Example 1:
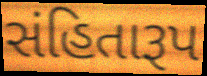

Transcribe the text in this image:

સંહિતારૂપ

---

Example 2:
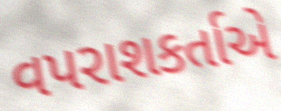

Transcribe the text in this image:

વપરાશકર્તાએ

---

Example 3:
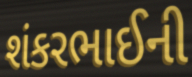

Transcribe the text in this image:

શંકરભાઈની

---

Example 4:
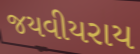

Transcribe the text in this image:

જયવીયરાય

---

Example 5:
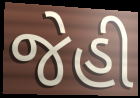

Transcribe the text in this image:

જેહી